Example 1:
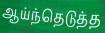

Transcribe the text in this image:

ஆய்ந்தெடுத்த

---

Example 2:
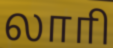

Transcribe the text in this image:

லாரி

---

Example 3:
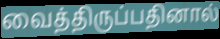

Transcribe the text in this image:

வைத்திருப்பதினால்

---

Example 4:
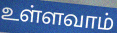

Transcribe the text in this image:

உள்ளவாம்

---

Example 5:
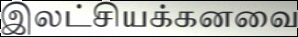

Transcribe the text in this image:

இலட்சியக்கனவை